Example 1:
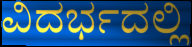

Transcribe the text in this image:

ವಿದರ್ಭದಲ್ಲಿ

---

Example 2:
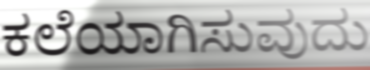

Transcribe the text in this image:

ಕಲೆಯಾಗಿಸುವುದು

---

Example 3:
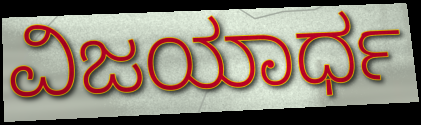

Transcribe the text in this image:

ವಿಜಯಾರ್ಧ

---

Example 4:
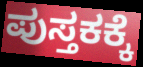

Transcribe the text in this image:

ಪುಸ್ತಕಕ್ಕೆ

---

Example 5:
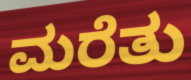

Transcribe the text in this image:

ಮರೆತು